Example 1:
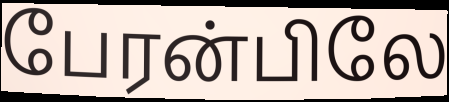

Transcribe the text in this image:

பேரன்பிலே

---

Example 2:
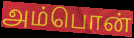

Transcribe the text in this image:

அம்பொன்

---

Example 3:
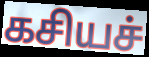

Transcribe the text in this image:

கசியச்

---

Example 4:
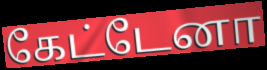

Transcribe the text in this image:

கேட்டேனா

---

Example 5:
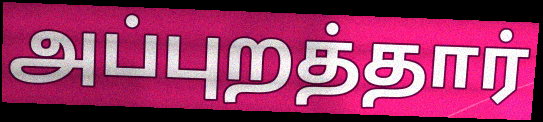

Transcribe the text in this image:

அப்புறத்தார்